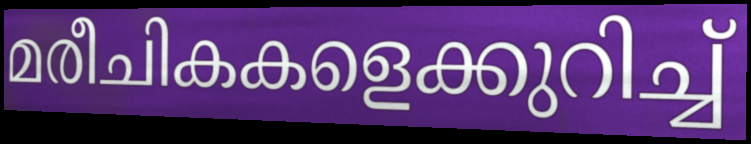
മരീചികകളെക്കുറിച്ച്